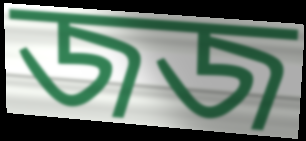
জজ